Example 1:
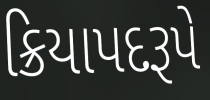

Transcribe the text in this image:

ક્રિયાપદરૂપે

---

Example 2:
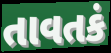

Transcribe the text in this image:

તાવતકં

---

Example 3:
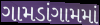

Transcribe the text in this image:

ગામડાંગામમાં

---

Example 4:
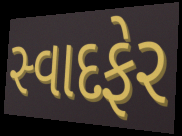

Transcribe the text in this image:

સ્વાદફેર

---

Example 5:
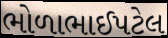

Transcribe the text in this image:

ભોળાભાઈપટેલ